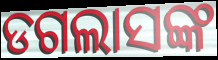
ଡଗଲାସଙ୍କ